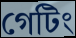
গেটিং